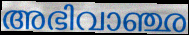
അഭിവാഞ്ഛ